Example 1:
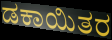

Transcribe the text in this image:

ಡಕಾಯಿತರ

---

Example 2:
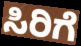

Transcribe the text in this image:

ಸಿರಿಗೆ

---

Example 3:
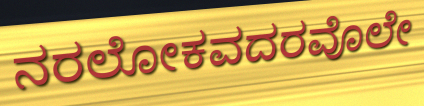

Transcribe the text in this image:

ನರಲೋಕವದರವೊಲೇ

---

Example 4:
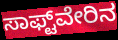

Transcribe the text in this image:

ಸಾಫ್ಟ್‌ವೇರಿನ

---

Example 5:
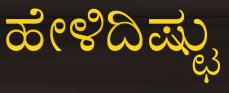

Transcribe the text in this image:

ಹೇಳಿದಿಷ್ಟು